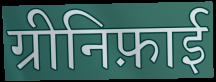
ग्रीनिफ़ाई